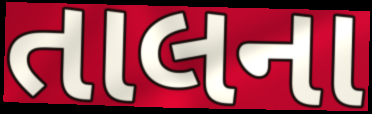
તાલના